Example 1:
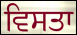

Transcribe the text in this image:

ਵਿਸਤਾ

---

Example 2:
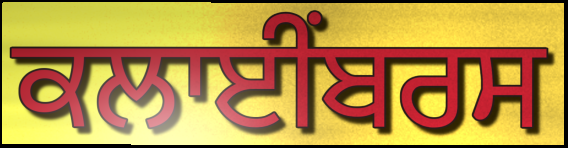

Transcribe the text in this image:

ਕਲਾਈਂਬਰਸ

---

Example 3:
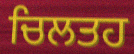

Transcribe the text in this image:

ਚਿਲਤਹ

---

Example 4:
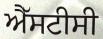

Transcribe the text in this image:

ਐੱਸਟੀਸੀ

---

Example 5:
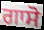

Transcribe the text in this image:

ਗਾਸੋ